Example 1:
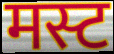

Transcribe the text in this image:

मस्‍ट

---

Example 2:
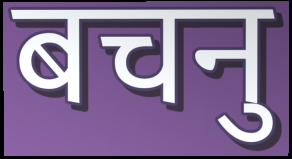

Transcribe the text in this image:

बचनु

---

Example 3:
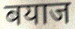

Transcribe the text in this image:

बयाज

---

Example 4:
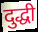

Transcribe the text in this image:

दुद्धी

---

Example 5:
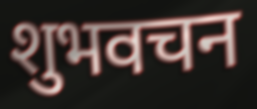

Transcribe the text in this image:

शुभवचन